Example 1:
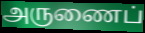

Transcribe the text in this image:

அருணைப்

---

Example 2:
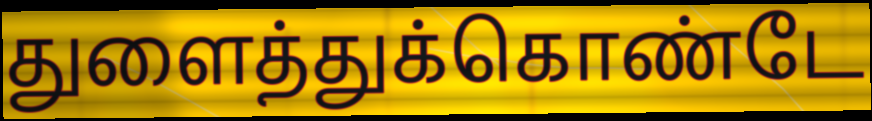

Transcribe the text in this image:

துளைத்துக்கொண்டே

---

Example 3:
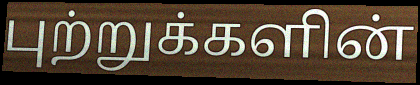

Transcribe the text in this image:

புற்றுக்களின்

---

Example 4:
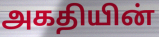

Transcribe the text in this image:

அகதியின்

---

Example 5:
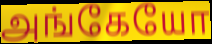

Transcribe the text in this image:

அங்கேயோ